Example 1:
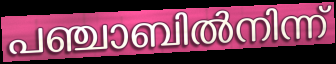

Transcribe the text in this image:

പഞ്ചാബിൽനിന്ന്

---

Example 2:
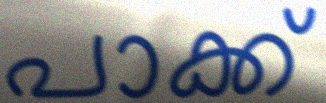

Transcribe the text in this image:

പാക്ക്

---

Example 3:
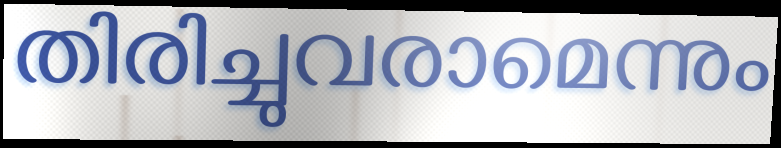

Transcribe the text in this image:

തിരിച്ചുവരാമെന്നും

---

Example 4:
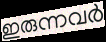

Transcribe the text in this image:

ഇരുന്നവർ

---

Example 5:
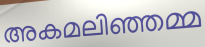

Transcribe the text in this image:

അകമലിഞ്ഞമ്മ